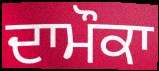
ਦਾਮੌਕਾ